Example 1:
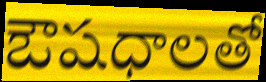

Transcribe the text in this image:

ఔషధాలతో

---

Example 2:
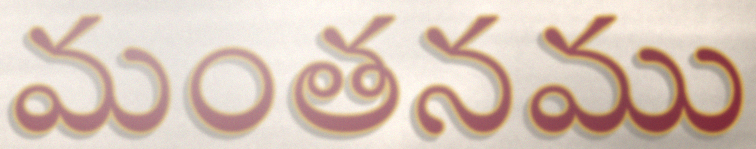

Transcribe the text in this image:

మంతనము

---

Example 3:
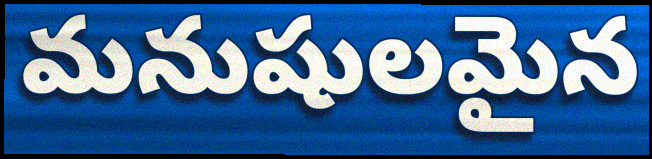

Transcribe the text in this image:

మనుషులమైన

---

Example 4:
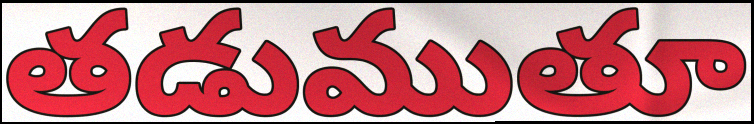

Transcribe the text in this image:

తడుముతూ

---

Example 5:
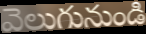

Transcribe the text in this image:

వెలుగునుండి